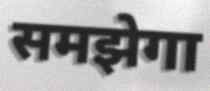
समझेगा